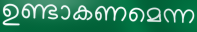
ഉണ്ടാകണമെന്ന